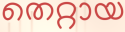
തെറ്റായ